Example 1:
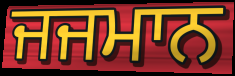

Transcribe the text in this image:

ਜਜਮਾਨ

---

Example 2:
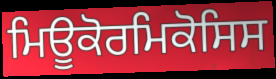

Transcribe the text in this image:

ਮਿਊਕੋਰਮਿਕੋਸਿਸ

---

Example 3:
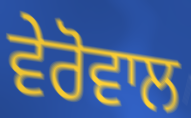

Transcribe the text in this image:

ਵੇਰੋਵਾਲ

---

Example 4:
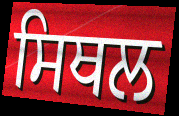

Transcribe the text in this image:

ਸਿਥਲ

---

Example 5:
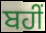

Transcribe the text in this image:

ਬਹੀਂ